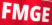
FMGE